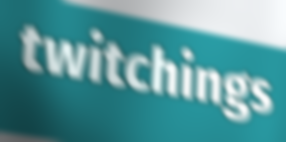
twitchings